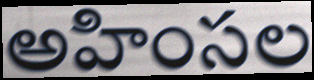
అహింసల